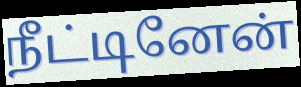
நீட்டினேன்